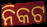
ନିକଟ